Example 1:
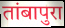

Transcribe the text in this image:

तांबापुरा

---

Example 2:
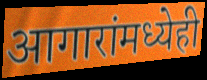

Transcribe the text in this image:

आगारांमध्येही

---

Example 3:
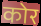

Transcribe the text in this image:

कोर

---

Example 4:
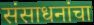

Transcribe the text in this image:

संसाधनांचा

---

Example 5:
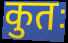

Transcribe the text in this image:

कुतः